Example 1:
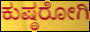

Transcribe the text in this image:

ಕುಷ್ಠರೋಗಿ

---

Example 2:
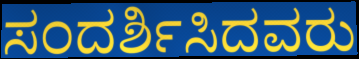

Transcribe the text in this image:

ಸಂದರ್ಶಿಸಿದವರು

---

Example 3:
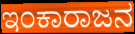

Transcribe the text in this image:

ಇಂಕಾರಾಜನ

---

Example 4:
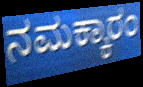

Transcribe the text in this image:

ನಮಕ್ಕಾರಂ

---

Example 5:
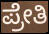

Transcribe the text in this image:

ಪ್ರೇತಿ